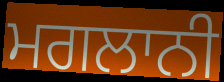
ਮਗਲਾਨੀ